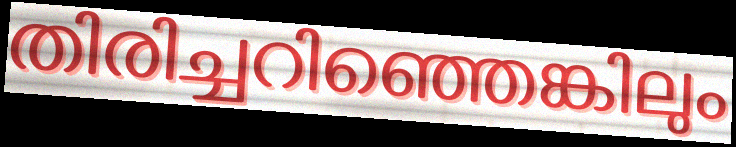
തിരിച്ചറിഞ്ഞെങ്കിലും